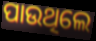
ପାଉଥିଲେ